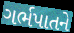
ગર્ભપાતને